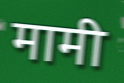
मामी